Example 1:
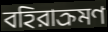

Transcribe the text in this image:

বহিরাক্রমণ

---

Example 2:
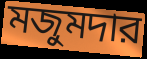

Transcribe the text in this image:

মজুমদার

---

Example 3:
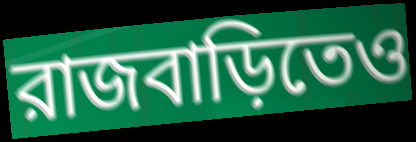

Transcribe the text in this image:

রাজবাড়িতেও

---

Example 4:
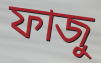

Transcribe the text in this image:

ফাজু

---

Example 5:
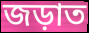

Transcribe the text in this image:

জড়াত